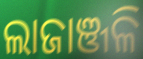
ଲାଜାଞ୍ଜଳି